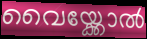
വൈയ്ക്കോൽ